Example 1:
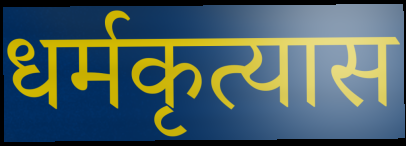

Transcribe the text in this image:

धर्मकृत्यास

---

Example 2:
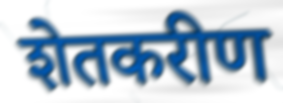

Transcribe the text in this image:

शेतकरीण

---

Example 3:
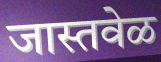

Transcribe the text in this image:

जास्तवेळ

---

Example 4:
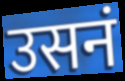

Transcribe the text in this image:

उसनं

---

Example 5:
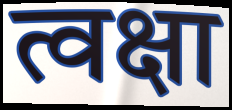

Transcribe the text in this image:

त्वक्षा